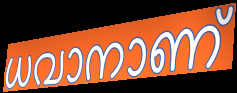
ധവാനാണ്